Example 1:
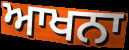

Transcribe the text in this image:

ਆਖਨਾ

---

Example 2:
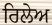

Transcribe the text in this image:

ਰਿਲੇਅ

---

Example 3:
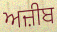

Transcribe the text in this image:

ਅਜ਼ੀਬ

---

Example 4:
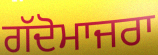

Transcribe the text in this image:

ਗੱਦੋਮਾਜਰਾ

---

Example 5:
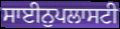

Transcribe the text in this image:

ਸਾਈਨੁਪਲਾਸਟੀ